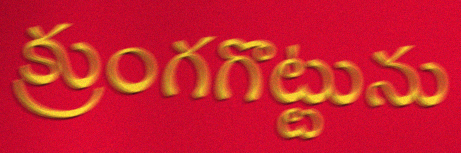
క్రుంగగొట్టును